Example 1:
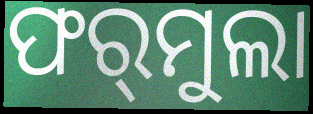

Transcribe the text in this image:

ଫର୍‌ମୁଲା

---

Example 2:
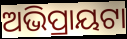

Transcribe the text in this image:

ଅଭିପ୍ରାୟଟା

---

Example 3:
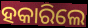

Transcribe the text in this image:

ହକାରିଲେ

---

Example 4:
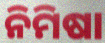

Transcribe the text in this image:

ନିମିଷା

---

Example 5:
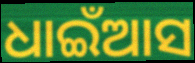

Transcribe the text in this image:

ଧାଇଁଆସ